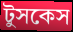
টুসকেস